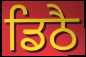
ਡਿਠੈ